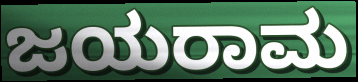
ಜಯರಾಮ